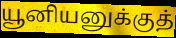
யூனியனுக்குத்